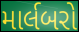
માર્લબરો